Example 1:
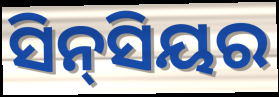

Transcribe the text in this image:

ସିନ୍‌ସିୟର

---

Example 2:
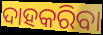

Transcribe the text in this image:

ଦାହକରିବା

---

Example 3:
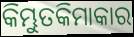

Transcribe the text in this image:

କିମ୍ଭୁତକିମାକାର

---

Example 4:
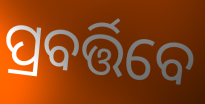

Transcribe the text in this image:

ପ୍ରବର୍ତ୍ତିବେ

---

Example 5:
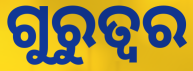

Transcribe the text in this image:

ଗୁରୁତ୍ବର